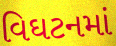
વિઘટનમાં